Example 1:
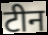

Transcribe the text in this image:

टीन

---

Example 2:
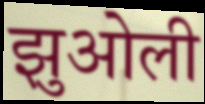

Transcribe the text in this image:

झुओली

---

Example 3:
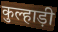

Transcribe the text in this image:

कुल्‍हाड़ी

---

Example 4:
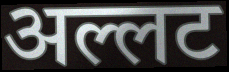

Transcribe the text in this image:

अल्लट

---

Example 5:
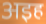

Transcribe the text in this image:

अइह